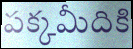
పక్కమీదికి